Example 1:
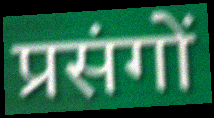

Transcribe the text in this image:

प्रसंगों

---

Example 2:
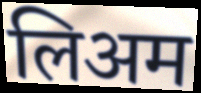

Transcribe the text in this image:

लिअम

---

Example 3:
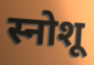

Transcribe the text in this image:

स्नोशू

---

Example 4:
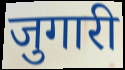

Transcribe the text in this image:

जुगारी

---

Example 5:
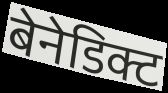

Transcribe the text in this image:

बेनेडिक्ट